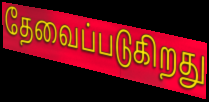
தேவைப்படுகிறது